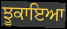
ਝੂਕਾਇਆ